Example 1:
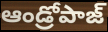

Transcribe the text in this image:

ఆండ్రోపాజ్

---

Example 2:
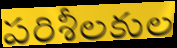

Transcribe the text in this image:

పరిశీలకుల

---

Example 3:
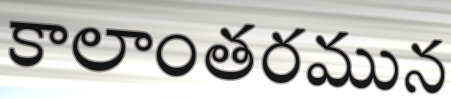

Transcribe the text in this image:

కాలాంతరమున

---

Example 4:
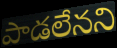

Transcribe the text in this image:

పాడలేనని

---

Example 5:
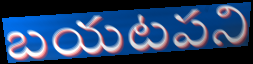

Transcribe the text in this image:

బయటపని